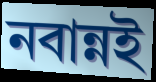
নবান্নই